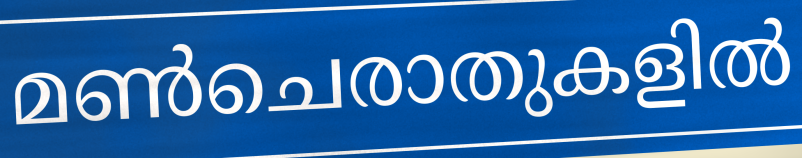
മൺചെരാതുകളിൽ